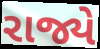
રાજ્યે